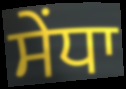
ਸੇਂਧਾ